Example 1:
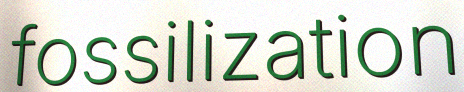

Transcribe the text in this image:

fossilization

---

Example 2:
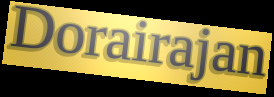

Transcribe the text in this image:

Dorairajan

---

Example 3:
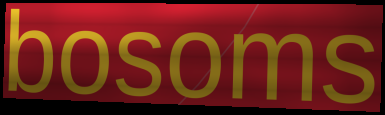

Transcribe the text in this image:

bosoms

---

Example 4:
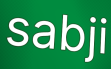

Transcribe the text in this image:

sabji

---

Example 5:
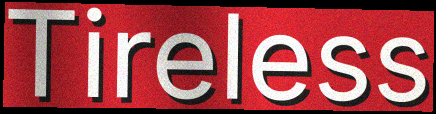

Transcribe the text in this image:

Tireless